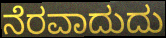
ನೆರವಾದುದು